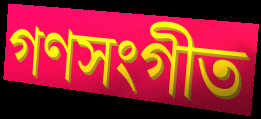
গণসংগীত